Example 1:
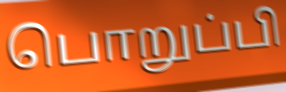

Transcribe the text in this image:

பொறுப்பி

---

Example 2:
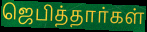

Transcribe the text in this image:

ஜெபித்தார்கள்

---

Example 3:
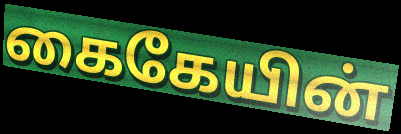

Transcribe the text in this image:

கைகேயின்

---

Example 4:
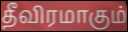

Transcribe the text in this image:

தீவிரமாகும்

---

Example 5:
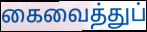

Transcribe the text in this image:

கைவைத்துப்